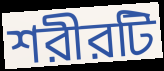
শরীরটি